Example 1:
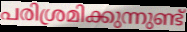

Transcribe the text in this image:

പരിശ്രമിക്കുന്നുണ്ട്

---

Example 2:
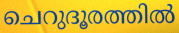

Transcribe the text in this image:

ചെറുദൂരത്തിൽ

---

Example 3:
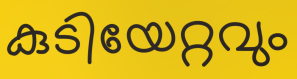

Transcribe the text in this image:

കുടിയേറ്റവും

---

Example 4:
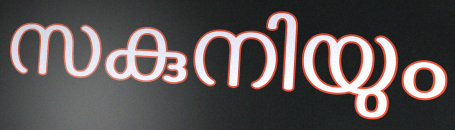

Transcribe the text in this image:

സകുനിയും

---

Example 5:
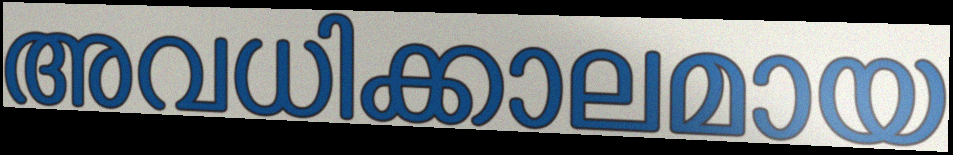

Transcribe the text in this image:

അവധിക്കാലമായ